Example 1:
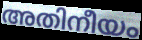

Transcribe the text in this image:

അതിനീയം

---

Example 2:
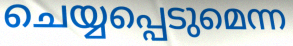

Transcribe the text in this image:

ചെയ്യപ്പെടുമെന്ന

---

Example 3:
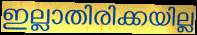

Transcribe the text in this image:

ഇല്ലാതിരിക്കയില്ല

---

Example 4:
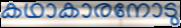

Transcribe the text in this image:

കഥാകാരനോടു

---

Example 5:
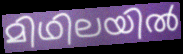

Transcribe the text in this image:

മിഥിലയിൽ